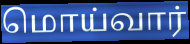
மொய்வார்